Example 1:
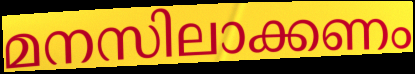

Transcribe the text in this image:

മനസിലാക്കണം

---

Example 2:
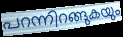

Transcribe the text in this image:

പറന്നിറങ്ങുകയും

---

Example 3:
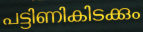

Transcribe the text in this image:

പട്ടിണികിടക്കും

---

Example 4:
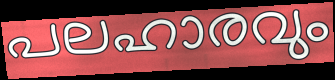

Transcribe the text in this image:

പലഹാരവും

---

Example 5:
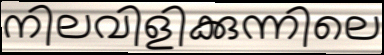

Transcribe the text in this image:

നിലവിളിക്കുന്നിലെ